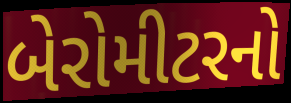
બેરોમીટરનો